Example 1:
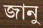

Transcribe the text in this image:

জানু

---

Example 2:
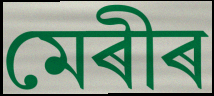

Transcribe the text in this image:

মেৰীৰ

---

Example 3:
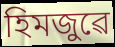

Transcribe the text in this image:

হিমজুৱে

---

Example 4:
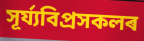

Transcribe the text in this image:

সূৰ্য্যবিপ্ৰসকলৰ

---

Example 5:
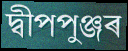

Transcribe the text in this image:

দ্বীপপুঞ্জৰ